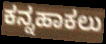
ಕನ್ನಹಾಕಲು